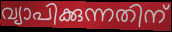
വ്യാപിക്കുന്നതിന്